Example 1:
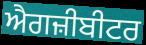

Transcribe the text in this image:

ਐਗਜ਼ੀਬੀਟਰ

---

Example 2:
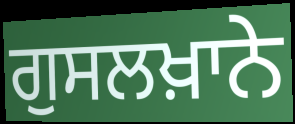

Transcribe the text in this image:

ਗੁਸਲਖ਼ਾਨੇ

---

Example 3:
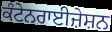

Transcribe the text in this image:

ਕੰਟੇਨਰਾਈਜ਼ੇਸ਼ਨ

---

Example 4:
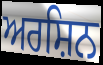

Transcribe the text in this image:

ਅਰਸ਼ਿਨ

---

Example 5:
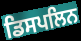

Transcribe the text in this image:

ਡਿਸਪਲਿਨ